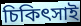
চিকিৎসাই